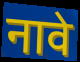
नावे